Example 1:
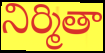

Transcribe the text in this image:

నిర్మితా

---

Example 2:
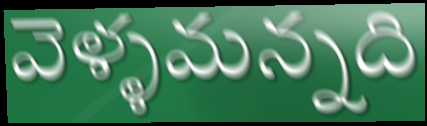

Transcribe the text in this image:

వెళ్ళమన్నది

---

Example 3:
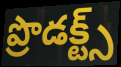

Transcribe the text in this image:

ప్రొడక్ట్స్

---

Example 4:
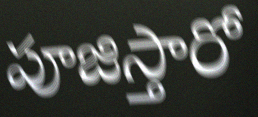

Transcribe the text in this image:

పూజిస్తారో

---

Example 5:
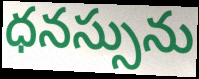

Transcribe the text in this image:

ధనస్సును